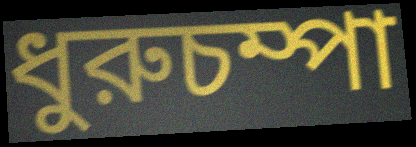
ধুরুচম্পা